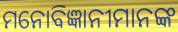
ମନୋବିଜ୍ଞାନୀମାନଙ୍କ